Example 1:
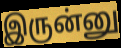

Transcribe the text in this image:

இருன்னு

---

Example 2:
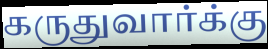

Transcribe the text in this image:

கருதுவார்க்கு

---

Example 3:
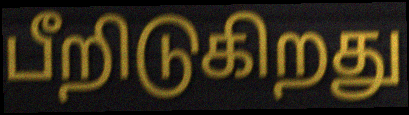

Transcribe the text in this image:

பீறிடுகிறது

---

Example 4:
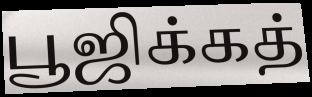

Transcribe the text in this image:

பூஜிக்கத்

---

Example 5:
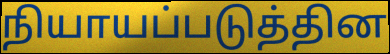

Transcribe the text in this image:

நியாயப்படுத்தின